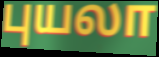
புயலா